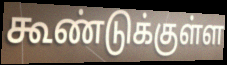
கூண்டுக்குள்ள